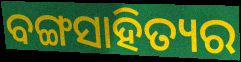
ବଙ୍ଗସାହିତ୍ୟର